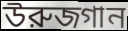
উরুজগান